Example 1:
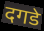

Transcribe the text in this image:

दगडे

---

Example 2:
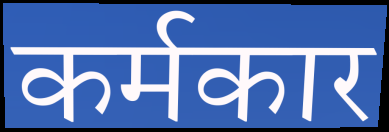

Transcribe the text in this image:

कर्मकार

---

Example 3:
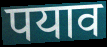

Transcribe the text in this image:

पयाव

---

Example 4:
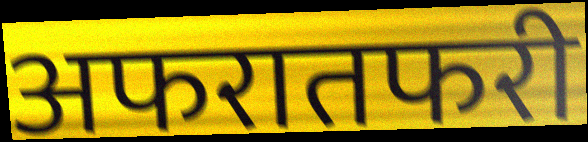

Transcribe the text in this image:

अफरातफरी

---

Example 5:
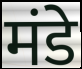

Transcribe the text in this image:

मंडे